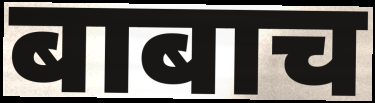
बाबाच